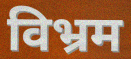
विभ्रम